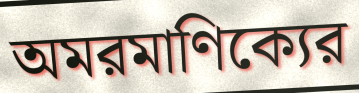
অমরমাণিক্যের